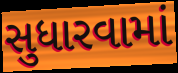
સુધારવામાં